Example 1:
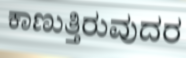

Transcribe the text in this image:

ಕಾಣುತ್ತಿರುವುದರ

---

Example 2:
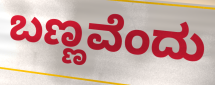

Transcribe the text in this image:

ಬಣ್ಣವೆಂದು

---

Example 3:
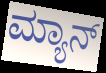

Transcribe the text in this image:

ಮ್ಯಾನ್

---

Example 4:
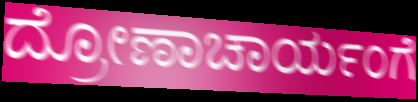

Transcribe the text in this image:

ದ್ರೋಣಾಚಾರ್ಯಂಗೆ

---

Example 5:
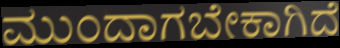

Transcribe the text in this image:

ಮುಂದಾಗಬೇಕಾಗಿದೆ